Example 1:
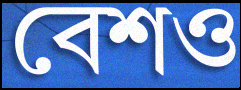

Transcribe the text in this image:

বেশও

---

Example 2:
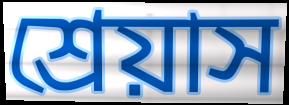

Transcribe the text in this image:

শ্রেয়াস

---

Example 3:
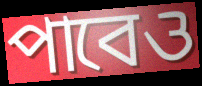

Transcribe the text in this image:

পাবেও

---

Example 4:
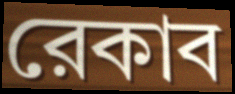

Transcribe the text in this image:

রেকাব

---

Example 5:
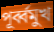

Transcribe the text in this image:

পূর্ব্বমুখ